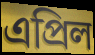
এপ্ৰিল